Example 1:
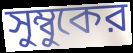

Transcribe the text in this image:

সুম্বুকের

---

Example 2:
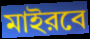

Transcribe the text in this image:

মাইরবে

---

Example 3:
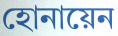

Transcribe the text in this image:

হোনায়েন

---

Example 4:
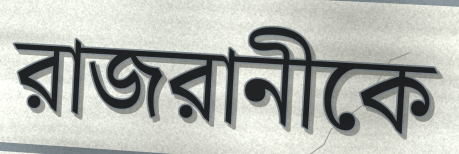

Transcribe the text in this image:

রাজরানীকে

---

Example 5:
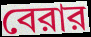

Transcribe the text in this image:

বেরার